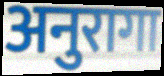
अनुरागा